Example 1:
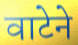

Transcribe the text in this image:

वाटेने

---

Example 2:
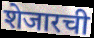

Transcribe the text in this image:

शेजारची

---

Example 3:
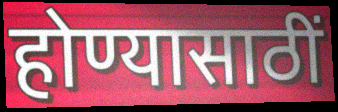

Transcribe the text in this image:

होण्यासाठीं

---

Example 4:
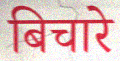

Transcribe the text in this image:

बिचारे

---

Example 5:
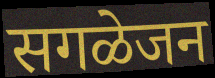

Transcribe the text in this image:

सगळेजन